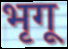
भृगू